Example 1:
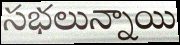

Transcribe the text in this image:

సభలున్నాయి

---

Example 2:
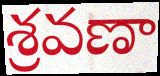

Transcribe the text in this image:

శ్రవణా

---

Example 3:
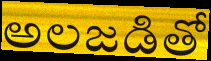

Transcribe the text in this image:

అలజడితో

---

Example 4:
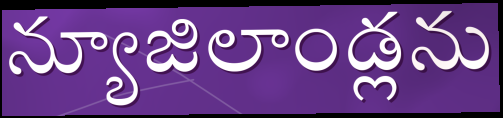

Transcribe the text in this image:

న్యూజిలాండ్లను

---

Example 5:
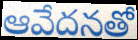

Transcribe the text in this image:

ఆవేదనతో